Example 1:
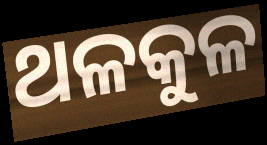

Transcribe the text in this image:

ଥଳକୁଳ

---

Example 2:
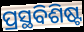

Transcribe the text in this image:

ପ୍ରସ୍ଥବିଶିଷ୍ଟ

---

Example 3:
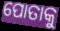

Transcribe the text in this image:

ପୋତାକୁ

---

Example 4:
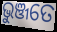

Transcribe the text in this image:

ଭୁଞ୍ଜତେ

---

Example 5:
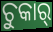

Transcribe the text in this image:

ଚୁକାର୍